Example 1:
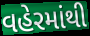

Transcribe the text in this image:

વહેરમાંથી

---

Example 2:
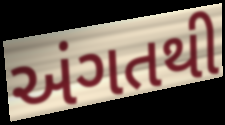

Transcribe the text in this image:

અંગતથી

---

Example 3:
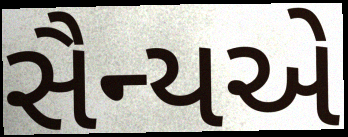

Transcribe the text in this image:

સૈન્યએ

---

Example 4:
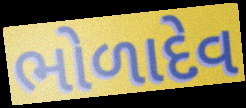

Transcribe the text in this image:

ભોળાદેવ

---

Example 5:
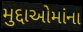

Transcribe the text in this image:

મુદ્દાઓમાંના